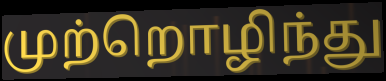
முற்றொழிந்து